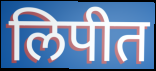
लिपीत